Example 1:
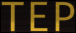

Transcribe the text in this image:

TEP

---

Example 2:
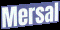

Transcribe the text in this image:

Mersal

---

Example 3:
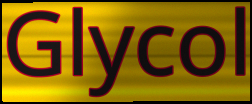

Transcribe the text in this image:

Glycol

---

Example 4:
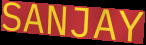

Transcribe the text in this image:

SANJAY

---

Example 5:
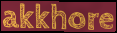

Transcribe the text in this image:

akkhore